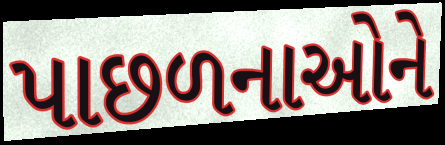
પાછળનાઓને